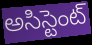
అసిస్టెంట్